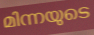
മിന്നയുടെ